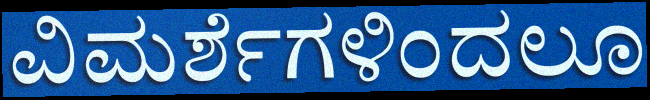
ವಿಮರ್ಶೆಗಳಿಂದಲೂ